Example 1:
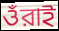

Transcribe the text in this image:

ওঁরাই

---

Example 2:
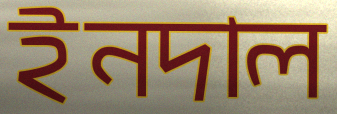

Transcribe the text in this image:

ইনদাল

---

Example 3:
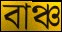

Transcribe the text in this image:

বাঞ্চ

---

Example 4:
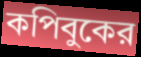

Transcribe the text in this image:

কপিবুকের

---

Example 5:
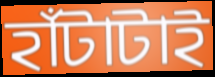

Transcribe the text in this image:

হাঁটাটাই